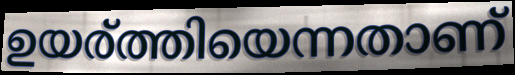
ഉയര്ത്തിയെന്നതാണ്